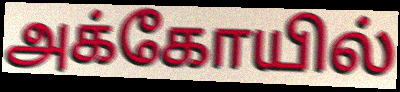
அக்கோயில்